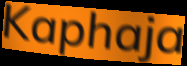
Kaphaja